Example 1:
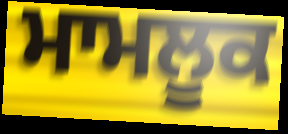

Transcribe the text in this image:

ਮਾਮਲੂਕ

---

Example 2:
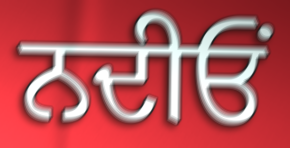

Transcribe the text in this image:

ਨਦੀਓਂ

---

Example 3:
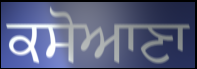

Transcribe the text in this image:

ਕਸੋਆਣਾ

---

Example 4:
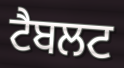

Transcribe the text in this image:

ਟੈਬਲਟ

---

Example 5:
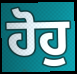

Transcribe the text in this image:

ਹੋਹੁ